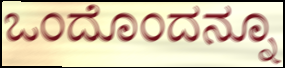
ಒಂದೊಂದನ್ನೂ